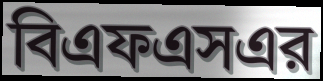
বিএফএসএর